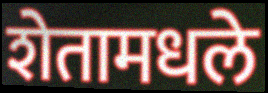
शेतामधले